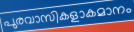
പുരവാസികളാകമാനം